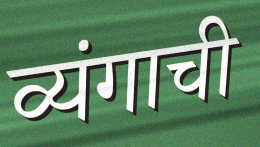
व्यंगाची